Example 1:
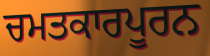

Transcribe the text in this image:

ਚਮਤਕਾਰਪੂਰਨ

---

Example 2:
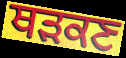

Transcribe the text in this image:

ਥੜਕਣ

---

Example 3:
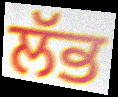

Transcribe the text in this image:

ਲੱਭ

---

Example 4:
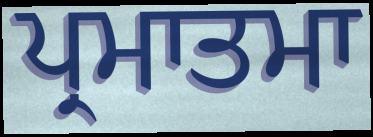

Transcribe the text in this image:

ਪ੍ਰਮਾਤਮਾ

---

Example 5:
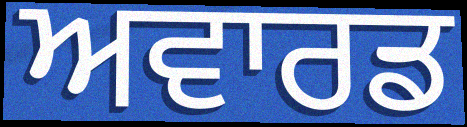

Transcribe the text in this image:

ਅਵਾਰਡ